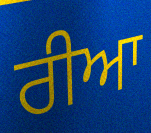
ਰੀਆ